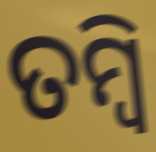
ତମ୍ବି